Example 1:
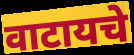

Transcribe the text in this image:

वाटायचे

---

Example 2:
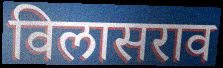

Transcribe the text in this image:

विलासराव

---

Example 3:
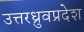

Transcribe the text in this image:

उत्तरध्रुवप्रदेश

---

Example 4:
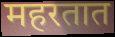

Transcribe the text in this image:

महरतात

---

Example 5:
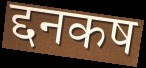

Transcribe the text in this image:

द्दनकष